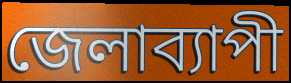
জেলাব্যাপী